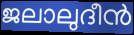
ജലാലുദീൻ